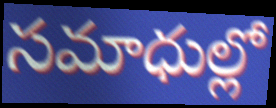
సమాధుల్లో